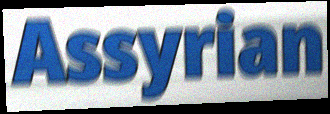
Assyrian